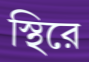
স্থিরে